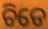
ଚିଡେ